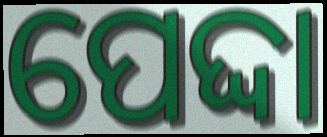
ପେଦ୍ଦା